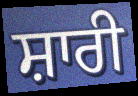
ਸ਼ਾਰੀ